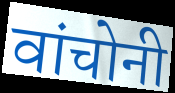
वांचोनी